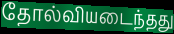
தோல்வியடைந்தது